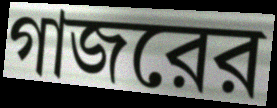
গাজরের